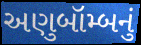
અણુબૉમ્બનું